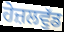
ਹੇਜ਼ਲਵੁੱਡ